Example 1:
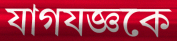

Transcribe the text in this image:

যাগযজ্ঞকে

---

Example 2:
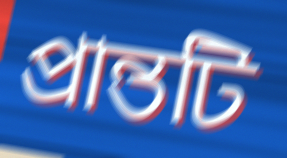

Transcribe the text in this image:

প্রান্তটি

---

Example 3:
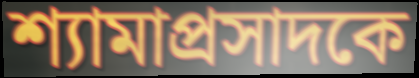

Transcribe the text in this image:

শ্যামাপ্রসাদকে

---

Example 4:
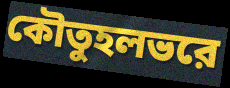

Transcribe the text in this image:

কৌতুহলভরে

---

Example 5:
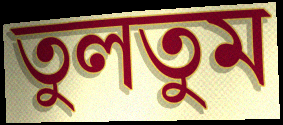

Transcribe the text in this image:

তুলতুম